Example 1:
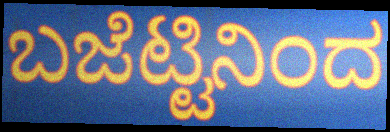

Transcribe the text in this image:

ಬಜೆಟ್ಟಿನಿಂದ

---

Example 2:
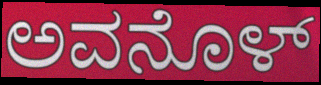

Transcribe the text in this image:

ಅವನೊಳ್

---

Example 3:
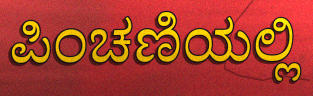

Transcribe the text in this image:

ಪಿಂಚಣಿಯಲ್ಲಿ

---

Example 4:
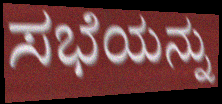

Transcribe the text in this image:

ಸಭೆಯನ್ನು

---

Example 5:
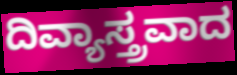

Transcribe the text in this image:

ದಿವ್ಯಾಸ್ತ್ರವಾದ